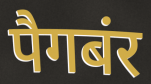
पैगबंर